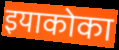
इयाकोका